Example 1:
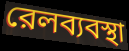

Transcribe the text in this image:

রেলব্যবস্থা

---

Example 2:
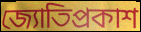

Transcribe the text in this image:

জ্যোতিপ্রকাশ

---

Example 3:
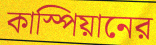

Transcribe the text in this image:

কাস্পিয়ানের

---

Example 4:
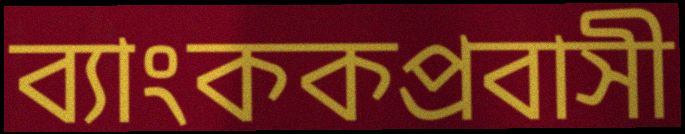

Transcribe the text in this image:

ব্যাংককপ্রবাসী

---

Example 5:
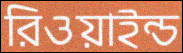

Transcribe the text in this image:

রিওয়াইন্ড